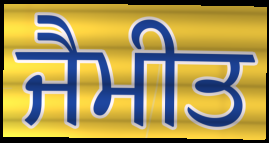
ਜੈਮੀਤ